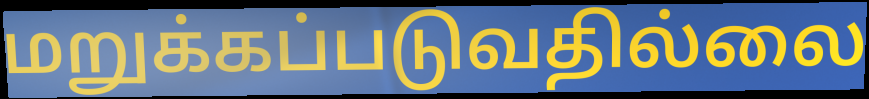
மறுக்கப்படுவதில்லை